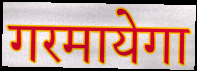
गरमायेगा